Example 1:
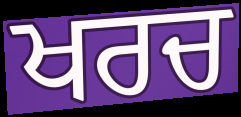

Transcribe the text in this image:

ਖਰਚ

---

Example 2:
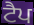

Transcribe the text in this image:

ਟੈਪ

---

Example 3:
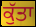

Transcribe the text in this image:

ਕੁੱਤਾ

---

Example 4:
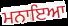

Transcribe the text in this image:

ਮਨਾਇਆ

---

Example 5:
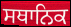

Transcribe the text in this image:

ਸਥਾਨਿਕ